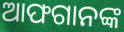
ଆଫଗାନଙ୍କ